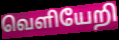
வெளியேறி